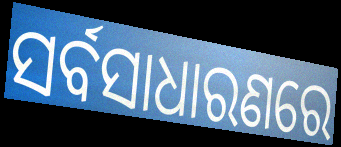
ସର୍ବସାଧାରଣରେ